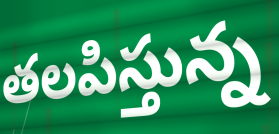
తలపిస్తున్న